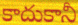
కాదుకానీ